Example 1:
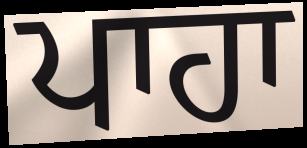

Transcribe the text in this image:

ਪਾਹਾ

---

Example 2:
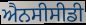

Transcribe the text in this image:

ਐਨਸੀਸੀਡੀ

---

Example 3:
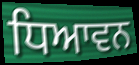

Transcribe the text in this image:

ਧਿਆਵਨ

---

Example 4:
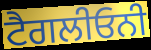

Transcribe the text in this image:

ਟੈਗਲੀਓਨੀ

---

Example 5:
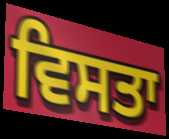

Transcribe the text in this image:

ਵਿਸਤਾ